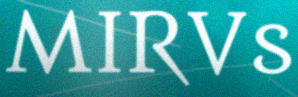
MIRVs